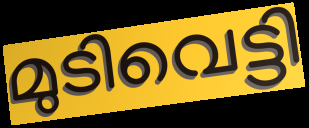
മുടിവെട്ടി